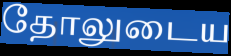
தோலுடைய